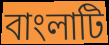
বাংলাটি